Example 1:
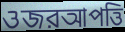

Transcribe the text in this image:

ওজরআপত্তি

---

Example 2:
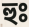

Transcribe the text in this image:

হুঃ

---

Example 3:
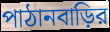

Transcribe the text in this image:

পাঠানবাড়ির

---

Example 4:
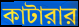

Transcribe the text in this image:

কাটারার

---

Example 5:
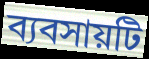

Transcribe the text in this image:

ব্যবসায়টি